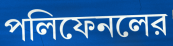
পলিফেনলের